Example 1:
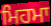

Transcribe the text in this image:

ਮਿਹਮਾ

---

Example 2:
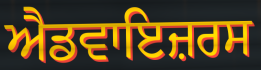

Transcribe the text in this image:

ਐਡਵਾਇਜ਼ਰਸ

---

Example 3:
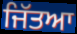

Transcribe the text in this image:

ਜਿੱਤਆ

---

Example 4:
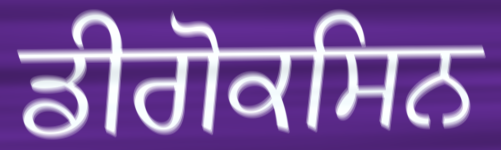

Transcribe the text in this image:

ਡੀਗੋਕਸਿਨ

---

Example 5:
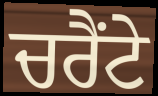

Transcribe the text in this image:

ਚਰੈਂਟੇ